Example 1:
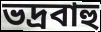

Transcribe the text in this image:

ভদ্রবাহু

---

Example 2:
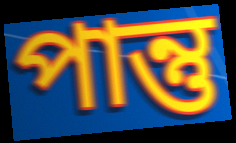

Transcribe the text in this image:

পান্তু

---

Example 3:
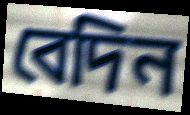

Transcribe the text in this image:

বেদিন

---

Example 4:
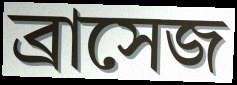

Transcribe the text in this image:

ব্রাসেজ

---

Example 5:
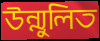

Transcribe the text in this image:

উন্মুলিত